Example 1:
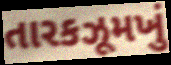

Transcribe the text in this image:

તારકઝૂમખું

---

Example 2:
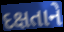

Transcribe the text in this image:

દક્ષતાને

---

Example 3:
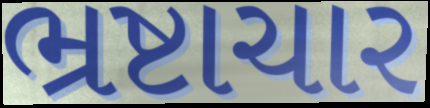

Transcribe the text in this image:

ભ્રષ્ટાચાર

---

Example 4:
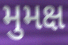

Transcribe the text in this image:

મુમક્ષ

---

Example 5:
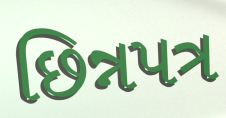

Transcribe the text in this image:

છિન્નપત્ર